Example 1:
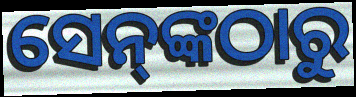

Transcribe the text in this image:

ସେନ୍‌ଙ୍କଠାରୁ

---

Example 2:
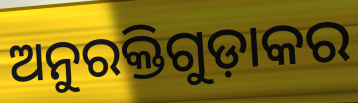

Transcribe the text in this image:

ଅନୁରକ୍ତିଗୁଡ଼ାକର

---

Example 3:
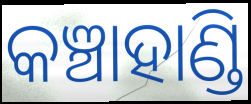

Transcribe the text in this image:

କଞ୍ଚାହାଣ୍ଡି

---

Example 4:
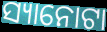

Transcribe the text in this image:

ସ୍ୟାନୋଟା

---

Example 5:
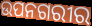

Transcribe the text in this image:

ଉପନଗରୀର